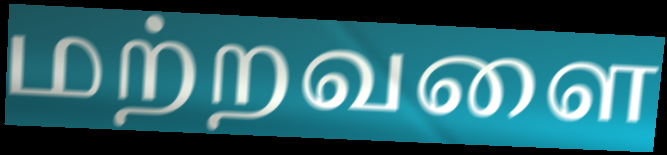
மற்றவளை